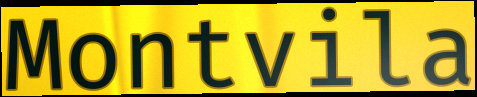
Montvila